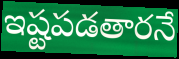
ఇష్టపడతారనే